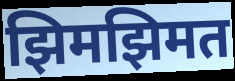
झिमझिमत